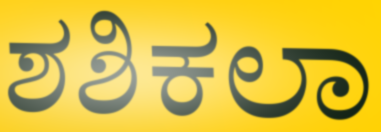
ಶಶಿಕಲಾ